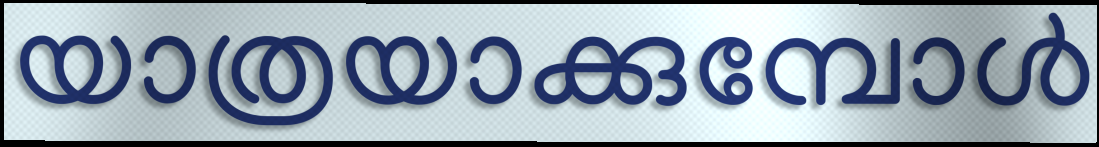
യാത്രയാക്കുമ്പോൾ